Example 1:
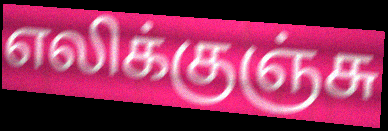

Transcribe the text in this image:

எலிக்குஞ்சு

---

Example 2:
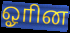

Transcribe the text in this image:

ஓரின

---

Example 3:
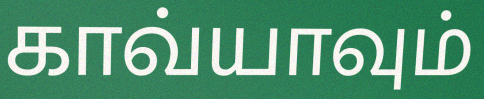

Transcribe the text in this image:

காவ்யாவும்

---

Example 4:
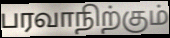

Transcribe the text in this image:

பரவாநிற்கும்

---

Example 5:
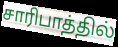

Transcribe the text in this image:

சாரிபாத்தில்